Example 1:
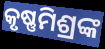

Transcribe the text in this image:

କୃଷ୍ଣମିଶ୍ରଙ୍କ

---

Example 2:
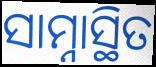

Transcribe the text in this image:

ସାମ୍ନାସ୍ଥିତ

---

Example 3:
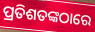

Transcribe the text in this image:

ପ୍ରତିଶତଙ୍କଠାରେ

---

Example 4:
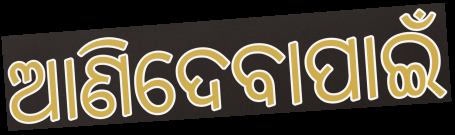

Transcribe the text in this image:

ଆଣିଦେବାପାଇଁ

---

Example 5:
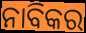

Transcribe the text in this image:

ନାବିକର